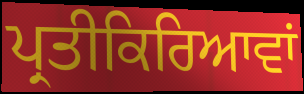
ਪ੍ਰਤੀਕਿਰਿਆਵਾਂ